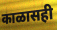
काळासही